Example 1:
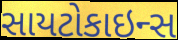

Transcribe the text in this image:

સાયટોકાઇન્સ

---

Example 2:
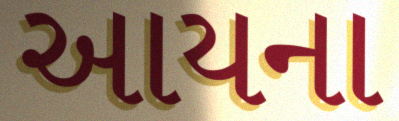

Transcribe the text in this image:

આયના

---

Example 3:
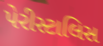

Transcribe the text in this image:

પેરીસ્ટાલિસ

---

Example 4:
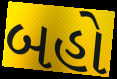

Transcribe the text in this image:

બહો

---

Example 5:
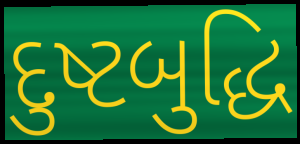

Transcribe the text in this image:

દુષ્ટબુદ્ધિ